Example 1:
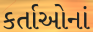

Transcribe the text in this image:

કર્તાઓનાં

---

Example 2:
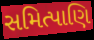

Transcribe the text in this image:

સમિત્પાણિ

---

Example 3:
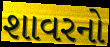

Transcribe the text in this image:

શાવરનો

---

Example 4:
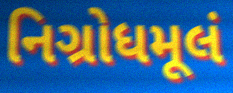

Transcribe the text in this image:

નિગ્રોધમૂલં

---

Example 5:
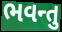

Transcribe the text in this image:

ભવન્તુ